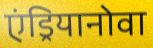
एंड्रियानोवा